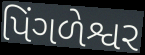
પિંગળેશ્વર